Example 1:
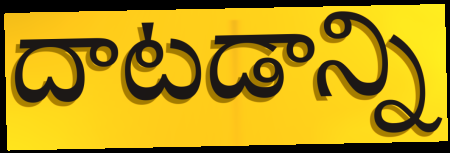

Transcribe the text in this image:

దాటడాన్ని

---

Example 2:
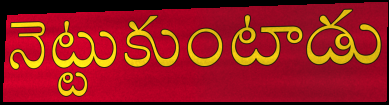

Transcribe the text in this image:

నెట్టుకుంటాడు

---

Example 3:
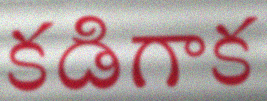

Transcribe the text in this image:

కడిగాక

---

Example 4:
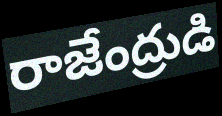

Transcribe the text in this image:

రాజేంద్రుడి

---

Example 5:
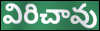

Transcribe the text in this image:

విరిచావు